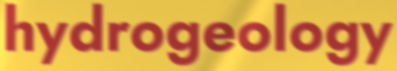
hydrogeology